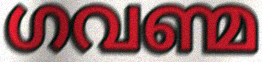
ഗവണ്മ